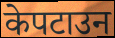
केपटाउन